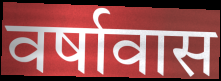
वर्षावास